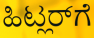
ಹಿಟ್ಲರ್‌ಗೆ